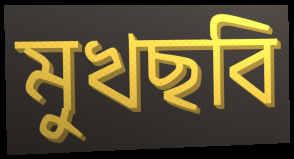
মুখছবি